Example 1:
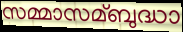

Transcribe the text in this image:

സമ്മാസമ്ബുദ്ധാ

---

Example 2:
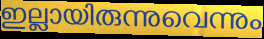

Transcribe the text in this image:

ഇല്ലായിരുന്നുവെന്നും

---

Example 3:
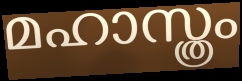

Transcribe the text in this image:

മഹാസ്ത്രം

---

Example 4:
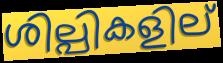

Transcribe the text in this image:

ശില്പികളില്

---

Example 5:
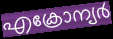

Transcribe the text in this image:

എക്രോന്യർ